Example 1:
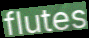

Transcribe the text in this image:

flutes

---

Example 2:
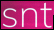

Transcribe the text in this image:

snt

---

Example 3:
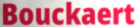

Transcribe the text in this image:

Bouckaert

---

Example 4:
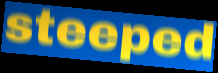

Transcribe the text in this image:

steeped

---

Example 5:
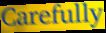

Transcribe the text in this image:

Carefully